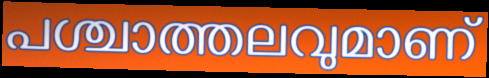
പശ്ചാത്തലവുമാണ്